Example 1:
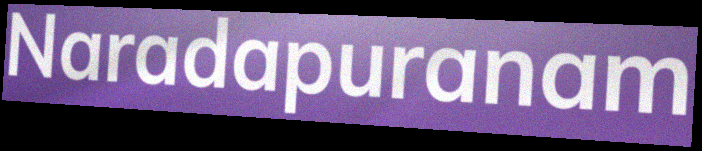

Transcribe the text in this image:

Naradapuranam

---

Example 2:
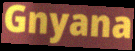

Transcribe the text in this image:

Gnyana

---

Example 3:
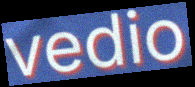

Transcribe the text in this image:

vedio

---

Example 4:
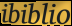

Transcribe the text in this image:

ibiblio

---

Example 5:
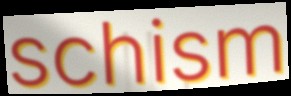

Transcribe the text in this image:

schism